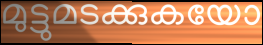
മുട്ടുമടക്കുകയോ